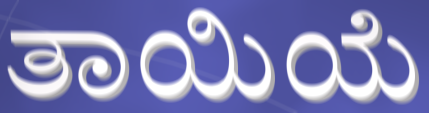
ತಾಯಿಯೆ